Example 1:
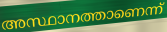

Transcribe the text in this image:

അസ്ഥാനത്താണെന്ന്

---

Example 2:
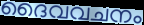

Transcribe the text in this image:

ദൈവവചനം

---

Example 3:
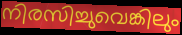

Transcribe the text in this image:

നിരസിച്ചുവെങ്കിലും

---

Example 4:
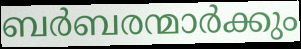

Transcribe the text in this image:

ബർബരന്മാർക്കും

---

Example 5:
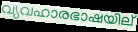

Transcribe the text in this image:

വ്യവഹാരഭാഷയില്